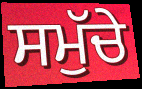
ਸਮੁੱਚੇ